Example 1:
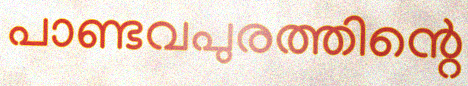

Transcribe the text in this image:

പാണ്ടവപുരത്തിന്റെ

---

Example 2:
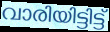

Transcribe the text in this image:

വാരിയിട്ടിട്ട്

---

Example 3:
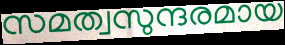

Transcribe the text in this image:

സമത്വസുന്ദരമായ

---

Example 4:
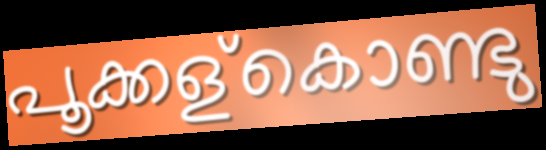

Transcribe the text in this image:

പൂക്കള്കൊണ്ടു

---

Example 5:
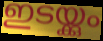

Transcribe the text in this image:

ഇടയ്ക്കും